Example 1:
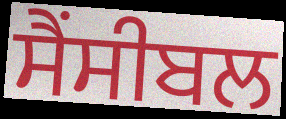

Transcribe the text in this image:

ਸੈਂਸੀਬਲ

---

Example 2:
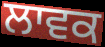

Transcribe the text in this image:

ਲਾਵਕ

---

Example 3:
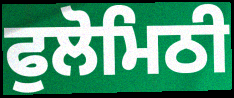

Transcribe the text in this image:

ਫੁਲੋਮਿਠੀ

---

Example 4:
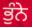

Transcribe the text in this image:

ਭੁੰਨੇ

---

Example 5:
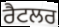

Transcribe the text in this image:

ਰੈਟਲਰ